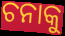
ଚନାକୁ